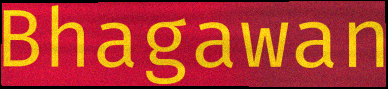
Bhagawan